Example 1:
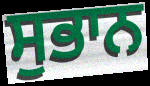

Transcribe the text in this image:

ਸੁਭਾਨ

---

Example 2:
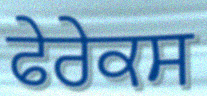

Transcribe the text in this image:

ਫੇਰੇਕਸ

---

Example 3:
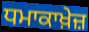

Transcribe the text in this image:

ਧਮਾਕਾਖ਼ੇਜ਼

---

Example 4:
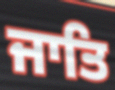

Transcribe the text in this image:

ਜਾਤਿ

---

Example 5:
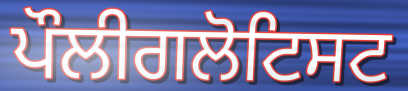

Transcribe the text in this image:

ਪੌਲੀਗਲੋਟਿਸਟ